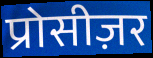
प्रोसीज़र